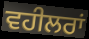
ਵਹੀਲਰਾਂ